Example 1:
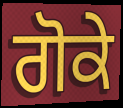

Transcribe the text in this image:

ਗੋਕੇ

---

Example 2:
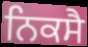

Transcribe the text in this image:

ਨਿਕਸੈ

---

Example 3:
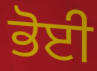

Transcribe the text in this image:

ਭੋਈ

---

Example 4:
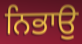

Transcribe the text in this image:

ਨਿਭਾਉ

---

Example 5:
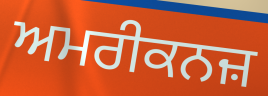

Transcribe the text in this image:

ਅਮਰੀਕਨਜ਼